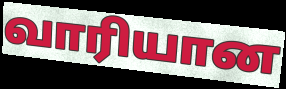
வாரியான